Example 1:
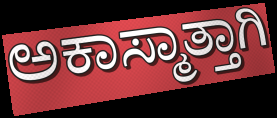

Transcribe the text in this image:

ಅಕಾಸ್ಮಾತ್ತಾಗಿ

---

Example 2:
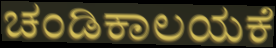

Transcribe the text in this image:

ಚಂಡಿಕಾಲಯಕೆ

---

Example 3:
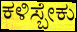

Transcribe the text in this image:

ಕಳಿಸ್ಬೇಕು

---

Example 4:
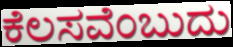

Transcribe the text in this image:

ಕೆಲಸವೆಂಬುದು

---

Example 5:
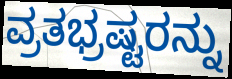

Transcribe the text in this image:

ವ್ರತಭ್ರಷ್ಟರನ್ನು